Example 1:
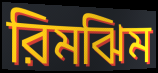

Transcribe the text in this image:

রিমঝিম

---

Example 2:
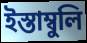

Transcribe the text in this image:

ইস্তাম্বুলি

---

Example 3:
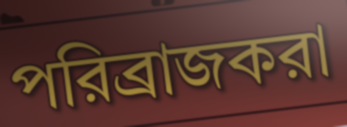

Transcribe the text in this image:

পরিব্রাজকরা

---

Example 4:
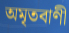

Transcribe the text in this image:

অমৃতবাণী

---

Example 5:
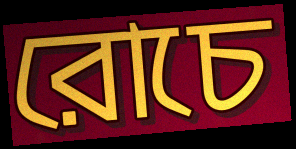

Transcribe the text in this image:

রোচে